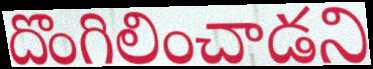
దొంగిలించాడని